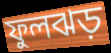
ফুলঝড়